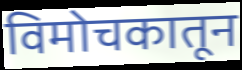
विमोचकातून